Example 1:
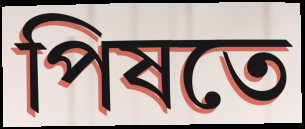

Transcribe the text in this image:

পিষতে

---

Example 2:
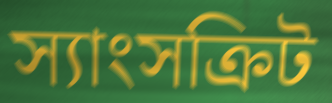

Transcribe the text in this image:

স্যাংসক্রিট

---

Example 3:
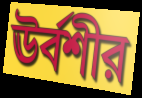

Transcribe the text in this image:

ঊর্বশীর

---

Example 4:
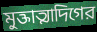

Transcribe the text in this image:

মুক্তাত্মাদিগের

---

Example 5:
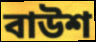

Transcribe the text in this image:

বাউশ